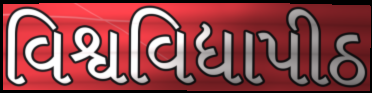
વિશ્વવિદ્યાપીઠ